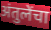
अंतुलेंचा